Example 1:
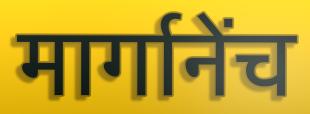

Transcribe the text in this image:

मार्गानेंच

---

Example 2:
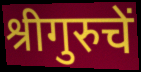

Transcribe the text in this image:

श्रीगुरुचें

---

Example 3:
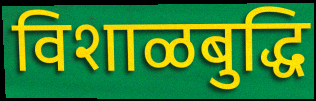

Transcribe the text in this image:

विशाळबुद्धि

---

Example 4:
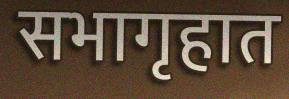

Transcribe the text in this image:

सभागृहात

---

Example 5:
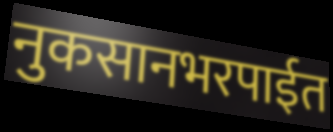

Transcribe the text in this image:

नुकसानभरपाईत